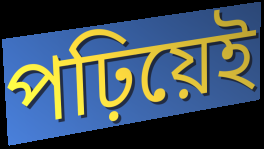
পঢ়িয়েই